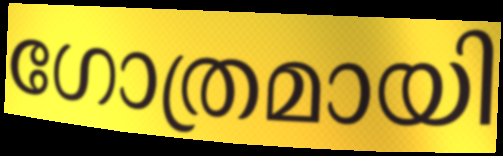
ഗോത്രമായി